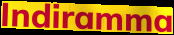
Indiramma